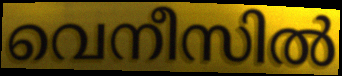
വെനീസിൽ